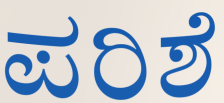
ಪರಿಶೆ